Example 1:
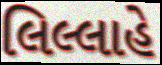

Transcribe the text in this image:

લિલ્લાહે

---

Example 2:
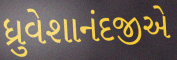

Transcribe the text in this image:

ધ્રુવેશાનંદજીએ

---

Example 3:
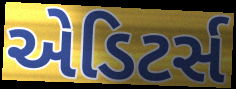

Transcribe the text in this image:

એડિટર્સ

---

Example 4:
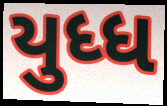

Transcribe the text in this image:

યુધ્ધ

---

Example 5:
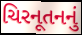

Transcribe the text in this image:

ચિરનૂતનનું